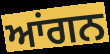
ਆਂਗਨ